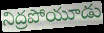
నిద్రపోయూడు